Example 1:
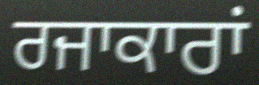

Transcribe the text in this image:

ਰਜਾਕਾਰਾਂ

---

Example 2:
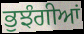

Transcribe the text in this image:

ਭੁਝੰਗੀਆਂ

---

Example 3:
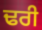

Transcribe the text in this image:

ਢਰੀ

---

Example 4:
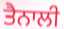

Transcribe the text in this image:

ਤੈਨਾਲੀ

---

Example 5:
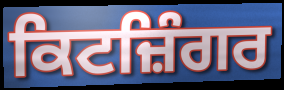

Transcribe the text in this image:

ਕਿਟਜ਼ਿੰਗਰ